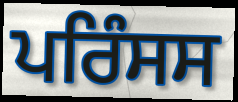
ਪਰਿੰਸਸ